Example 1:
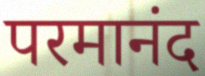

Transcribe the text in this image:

परमानंद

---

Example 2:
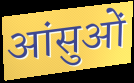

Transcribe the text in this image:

आंसुओं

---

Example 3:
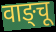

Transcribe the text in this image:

वाङ्चू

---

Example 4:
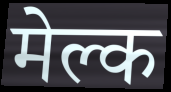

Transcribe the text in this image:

मेल्क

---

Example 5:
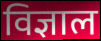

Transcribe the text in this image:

विज्ञाल